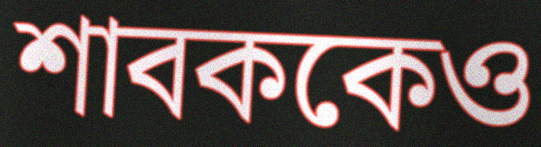
শাবককেও